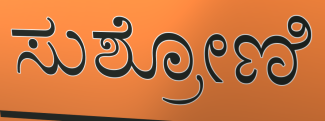
ಸುಶ್ರೋಣಿ